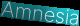
Amnesia